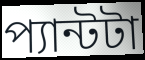
প্যান্টটা